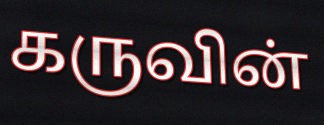
கருவின்